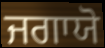
ਜਗਾਯੋ